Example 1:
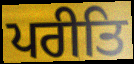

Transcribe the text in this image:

ਪਰੀਤਿ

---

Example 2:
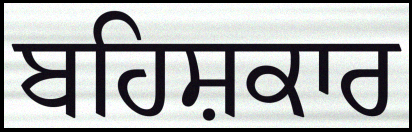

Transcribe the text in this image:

ਬਹਿਸ਼ਕਾਰ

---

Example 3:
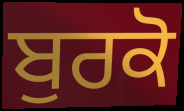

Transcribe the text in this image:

ਬੁਰਕੋ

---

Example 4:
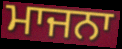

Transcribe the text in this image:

ਮਾਜਨਾ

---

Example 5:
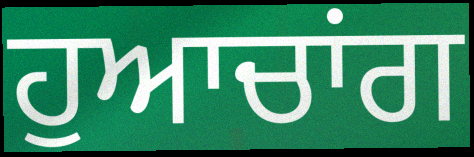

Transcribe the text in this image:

ਹੁਆਚਾਂਗ